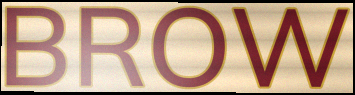
BROW